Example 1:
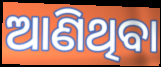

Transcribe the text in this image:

ଆଣିଥିବା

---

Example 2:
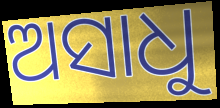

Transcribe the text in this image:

ଅସାଧୁ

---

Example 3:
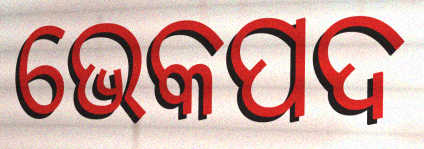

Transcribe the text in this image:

ଭେକପଦ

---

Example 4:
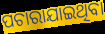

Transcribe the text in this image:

ପଚାରାଯାଇଥିବା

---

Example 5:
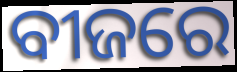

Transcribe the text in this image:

ବୀଜରେ